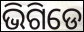
ଭିଗିଡେ